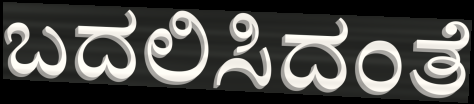
ಬದಲಿಸಿದಂತೆ